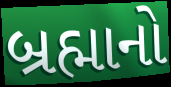
બ્રહ્માનો